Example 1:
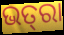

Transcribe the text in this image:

ଭତ୍‌ରା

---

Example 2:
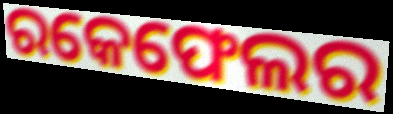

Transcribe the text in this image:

ରକେଫେଲର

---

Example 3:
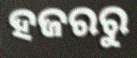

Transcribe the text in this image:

ହଜରରୁ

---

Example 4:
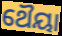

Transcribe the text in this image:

ଥୈୟା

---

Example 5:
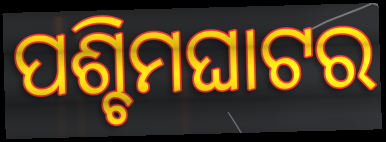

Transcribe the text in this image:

ପଶ୍ଚିମଘାଟର